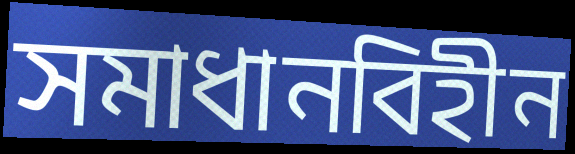
সমাধানবিহীন